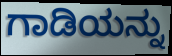
ಗಾಡಿಯನ್ನು